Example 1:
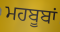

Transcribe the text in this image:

ਮਹਬੂਬਾਂ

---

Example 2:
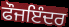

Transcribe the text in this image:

ਫੌਜਇੰਦਰ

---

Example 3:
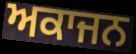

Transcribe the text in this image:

ਅਕਾਜਨ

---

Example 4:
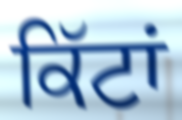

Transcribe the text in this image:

ਕਿੱਟਾਂ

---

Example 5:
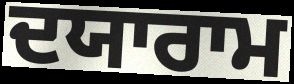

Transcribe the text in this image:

ਦਯਾਰਾਮ